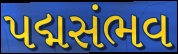
પદ્મસંભવ